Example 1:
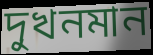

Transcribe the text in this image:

দুখনমান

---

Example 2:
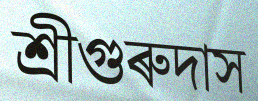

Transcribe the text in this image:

শ্ৰীগুৰুদাস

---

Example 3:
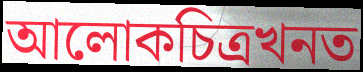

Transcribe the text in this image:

আলোকচিত্ৰখনত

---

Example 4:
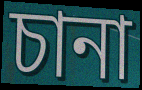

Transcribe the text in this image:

চানা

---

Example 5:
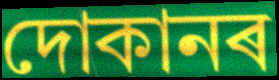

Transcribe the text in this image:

দোকানৰ